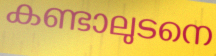
കണ്ടാലുടനെ